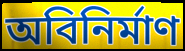
অবিনির্মাণ